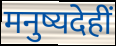
मनुष्यदेहीं